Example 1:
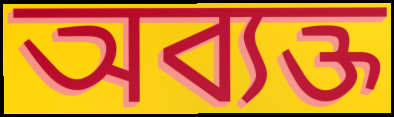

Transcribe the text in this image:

অব্যক্ত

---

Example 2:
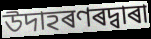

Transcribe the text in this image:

উদাহৰণৰদ্বাৰা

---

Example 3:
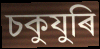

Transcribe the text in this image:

চকুযুৰি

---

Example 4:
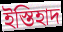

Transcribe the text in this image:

ইস্তিহাদ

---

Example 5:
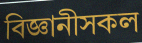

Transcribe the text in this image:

বিজ্ঞানীসকল